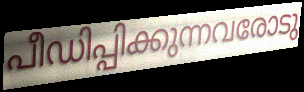
പീഡിപ്പിക്കുന്നവരോടു